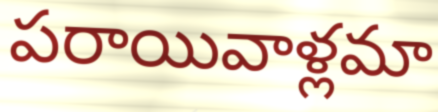
పరాయివాళ్లమా